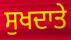
ਸੁਖਦਾਤੇ